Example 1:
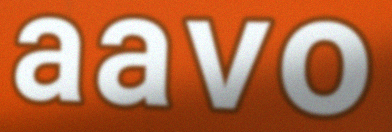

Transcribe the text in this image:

aavo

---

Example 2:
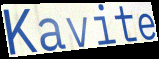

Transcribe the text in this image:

Kavite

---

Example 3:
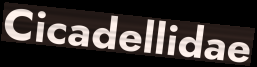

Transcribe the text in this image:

Cicadellidae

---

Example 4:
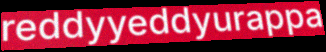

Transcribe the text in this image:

reddyyeddyurappa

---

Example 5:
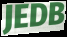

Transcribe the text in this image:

JEDB